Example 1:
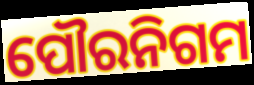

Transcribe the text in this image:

ପୌରନିଗମ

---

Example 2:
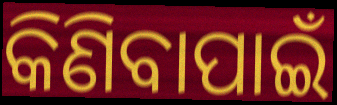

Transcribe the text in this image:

କିଣିବାପାଇଁ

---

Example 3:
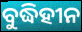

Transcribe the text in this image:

ବୁଦ୍ଧିହୀନ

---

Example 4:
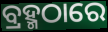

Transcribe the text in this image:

ବ୍ରହ୍ମଠାରେ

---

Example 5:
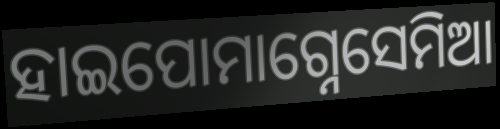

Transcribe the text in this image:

ହାଇପୋମାଗ୍ନେସେମିଆ